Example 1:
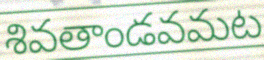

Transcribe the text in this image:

శివతాండవమట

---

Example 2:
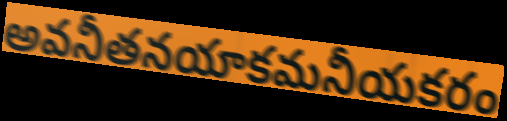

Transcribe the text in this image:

అవనీతనయాకమనీయకరం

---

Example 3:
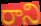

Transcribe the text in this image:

రాని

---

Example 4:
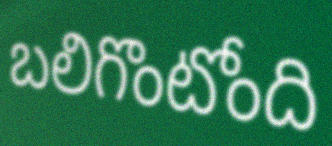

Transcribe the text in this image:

బలిగొంటోంది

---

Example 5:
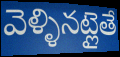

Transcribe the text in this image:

వెళ్ళినట్లైతే